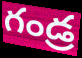
గండ్ర